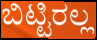
ಬಿಟ್ಟಿರಲ್ಲ